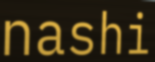
nashi